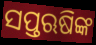
ସପ୍ତଋଷିଙ୍କ